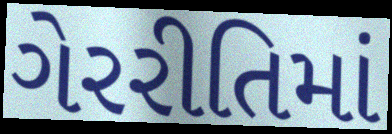
ગેરરીતિમાં